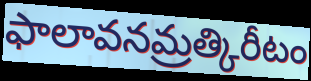
ఫాలావనమ్రత్కిరీటం